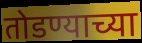
तोडण्याच्या